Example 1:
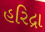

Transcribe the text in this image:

હરિદ્રા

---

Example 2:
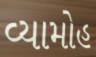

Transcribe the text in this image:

વ્યામોહ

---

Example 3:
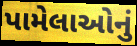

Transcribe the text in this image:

પામેલાઓનું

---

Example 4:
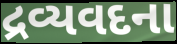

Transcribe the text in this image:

દ્રવ્યવદના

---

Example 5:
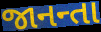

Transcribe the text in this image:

જાનન્તા